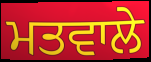
ਮਤਵਾਲੇ